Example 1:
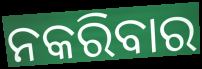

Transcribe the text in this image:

ନକରିବାର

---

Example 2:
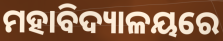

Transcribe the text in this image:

ମହାବିଦ୍ୟାଳୟରେ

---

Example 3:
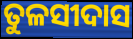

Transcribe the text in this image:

ତୁଳସୀଦାସ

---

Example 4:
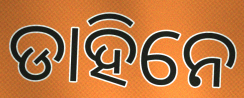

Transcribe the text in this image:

ଡାହିନେ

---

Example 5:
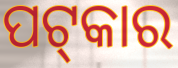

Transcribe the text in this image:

ପଟ୍‌କାର